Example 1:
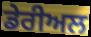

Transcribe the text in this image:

ਡੇਰੀਅਲ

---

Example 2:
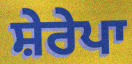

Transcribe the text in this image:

ਸ਼ੇਰੇਪਾ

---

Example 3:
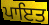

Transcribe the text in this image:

ਪਾਇਤ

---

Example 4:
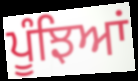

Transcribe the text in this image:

ਪੂੰਝਿਆਂ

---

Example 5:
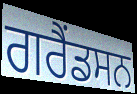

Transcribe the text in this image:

ਗਰੈਂਡਸਨ